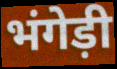
भंगेड़ी